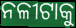
ନଳୀଟାକୁ